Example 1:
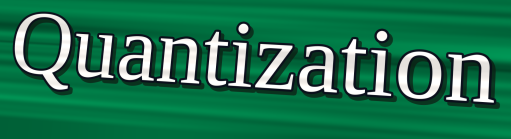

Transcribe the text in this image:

Quantization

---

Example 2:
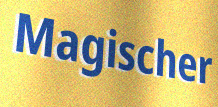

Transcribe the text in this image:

Magischer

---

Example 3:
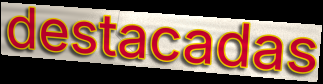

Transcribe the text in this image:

destacadas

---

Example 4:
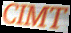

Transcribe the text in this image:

CIMT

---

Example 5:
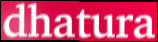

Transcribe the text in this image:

dhatura